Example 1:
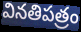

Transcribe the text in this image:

వినతిపత్రం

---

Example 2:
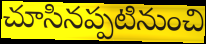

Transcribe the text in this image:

చూసినప్పటినుంచి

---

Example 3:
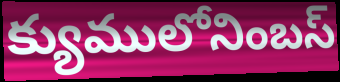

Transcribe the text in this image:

క్యుములోనింబస్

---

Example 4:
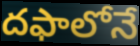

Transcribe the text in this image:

దఫాలోనే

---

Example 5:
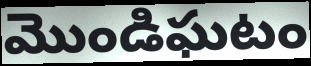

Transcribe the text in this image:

మొండిఘటం